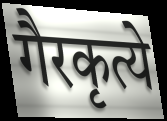
गैरकृत्ये